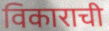
विकाराची